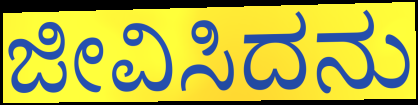
ಜೀವಿಸಿದನು